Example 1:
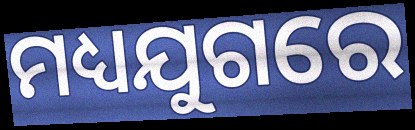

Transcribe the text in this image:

ମଧ୍ୟଯୁଗରେ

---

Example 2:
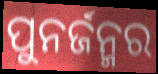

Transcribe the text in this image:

ପୁନର୍ଜନ୍ମର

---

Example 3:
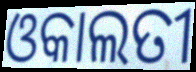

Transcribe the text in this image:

ଓକାଲତୀ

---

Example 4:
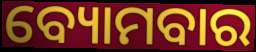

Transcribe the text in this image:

ବ୍ୟୋମବାର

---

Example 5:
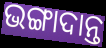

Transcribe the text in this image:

ଭଙ୍ଗାଦାନ୍ତ